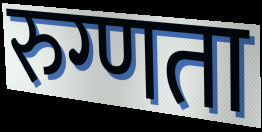
रुग्णता